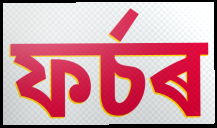
ফৰ্চৰ